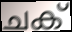
ചക്